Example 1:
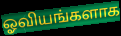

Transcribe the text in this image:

ஓவியங்களாக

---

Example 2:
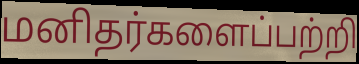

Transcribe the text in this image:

மனிதர்களைப்பற்றி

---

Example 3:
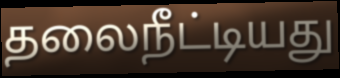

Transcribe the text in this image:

தலைநீட்டியது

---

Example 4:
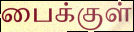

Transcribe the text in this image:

பைக்குள்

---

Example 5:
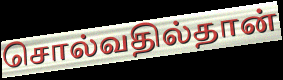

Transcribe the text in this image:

சொல்வதில்தான்